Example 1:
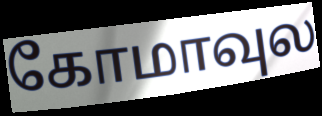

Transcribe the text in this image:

கோமாவுல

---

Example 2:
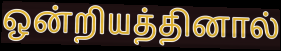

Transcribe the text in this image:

ஒன்றியத்தினால்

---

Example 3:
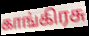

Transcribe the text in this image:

காங்கிரசு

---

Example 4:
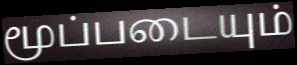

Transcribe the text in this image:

மூப்படையும்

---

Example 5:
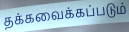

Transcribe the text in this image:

தக்கவைக்கப்படும்